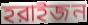
হরাইজন